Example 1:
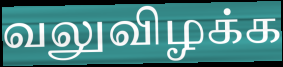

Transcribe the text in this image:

வலுவிழக்க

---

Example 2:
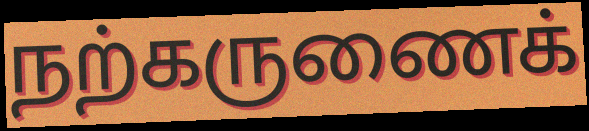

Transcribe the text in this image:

நற்கருணைக்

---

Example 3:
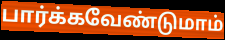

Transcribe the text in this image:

பார்க்கவேண்டுமாம்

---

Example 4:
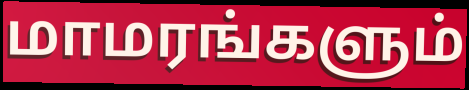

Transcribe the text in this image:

மாமரங்களும்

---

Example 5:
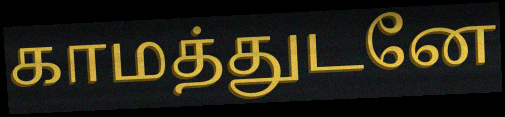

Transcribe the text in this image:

காமத்துடனே